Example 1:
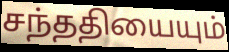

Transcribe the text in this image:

சந்ததியையும்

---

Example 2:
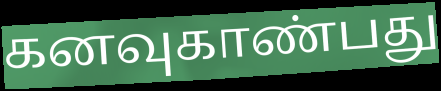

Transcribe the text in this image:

கனவுகாண்பது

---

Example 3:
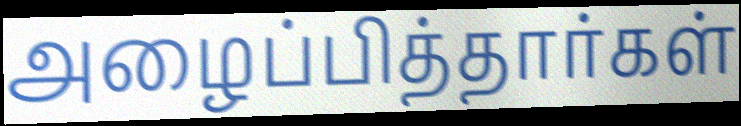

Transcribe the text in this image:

அழைப்பித்தார்கள்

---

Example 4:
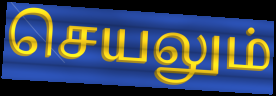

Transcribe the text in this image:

செயலும்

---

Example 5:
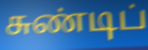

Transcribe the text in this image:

சுண்டிப்